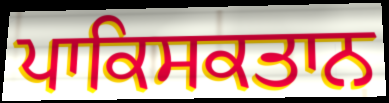
ਪਾਕਿਸਕਤਾਨ